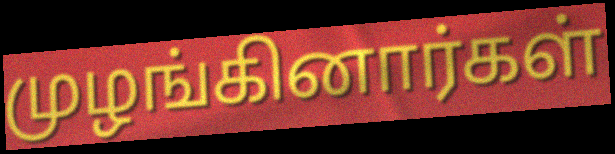
முழங்கினார்கள்